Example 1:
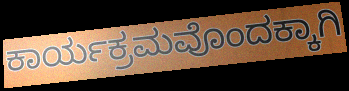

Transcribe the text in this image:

ಕಾರ್ಯಕ್ರಮವೊಂದಕ್ಕಾಗಿ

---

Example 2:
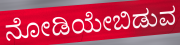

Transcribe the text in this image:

ನೋಡಿಯೇಬಿಡುವ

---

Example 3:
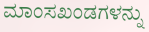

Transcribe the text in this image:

ಮಾಂಸಖಂಡಗಳನ್ನು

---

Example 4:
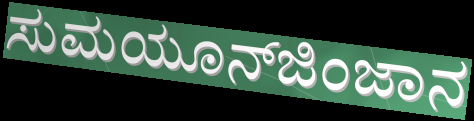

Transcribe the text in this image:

ಸುಮಯೂನ್‍ಜಿಂಜಾನ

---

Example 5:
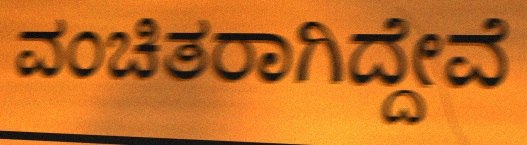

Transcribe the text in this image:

ವಂಚಿತರಾಗಿದ್ದೇವೆ